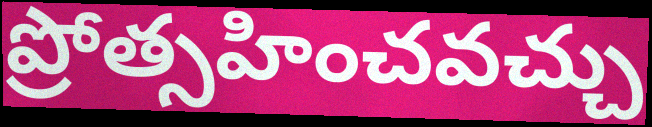
ప్రోత్సహించవచ్చు